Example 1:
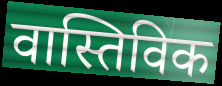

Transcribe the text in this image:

वास्तिविक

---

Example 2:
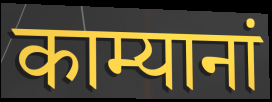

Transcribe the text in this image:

काम्यानां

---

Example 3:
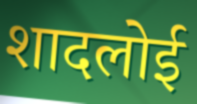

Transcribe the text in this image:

शादलोई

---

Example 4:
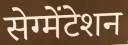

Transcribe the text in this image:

सेग्मेंटेशन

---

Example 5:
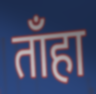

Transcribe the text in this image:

ताँहा